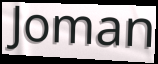
Joman